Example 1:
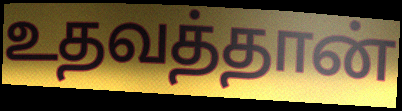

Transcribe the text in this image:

உதவத்தான்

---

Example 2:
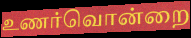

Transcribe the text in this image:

உணர்வொன்றை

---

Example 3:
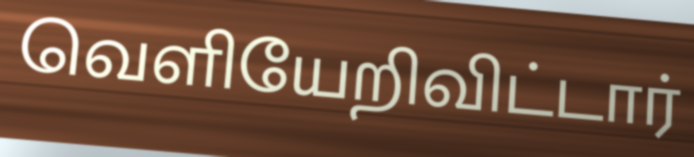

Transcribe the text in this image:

வெளியேறிவிட்டார்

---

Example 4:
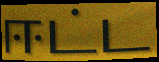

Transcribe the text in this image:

ஈட்ட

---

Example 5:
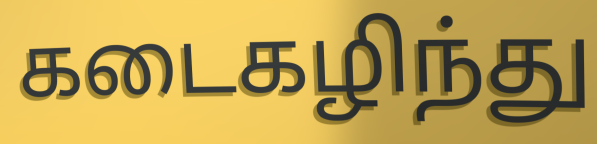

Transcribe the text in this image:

கடைகழிந்து